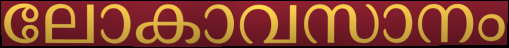
ലോകാവസാനം